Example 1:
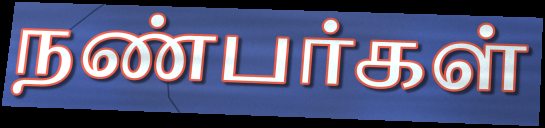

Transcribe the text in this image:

நண்பர்கள்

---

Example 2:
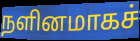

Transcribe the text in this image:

நளினமாகச்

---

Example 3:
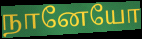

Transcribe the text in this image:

நானேயோ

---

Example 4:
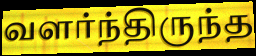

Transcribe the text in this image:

வளர்ந்திருந்த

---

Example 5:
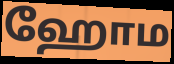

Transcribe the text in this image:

ஹோம